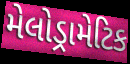
મેલોડ્રામેટિક